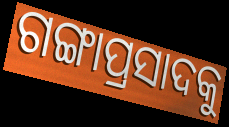
ଗଙ୍ଗାପ୍ରସାଦକୁ